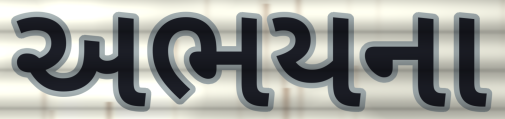
અભયના